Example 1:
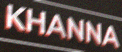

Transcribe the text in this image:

KHANNA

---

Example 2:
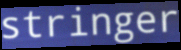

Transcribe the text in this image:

stringer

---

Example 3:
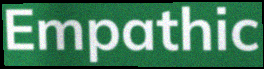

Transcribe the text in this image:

Empathic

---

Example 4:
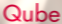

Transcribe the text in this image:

Qube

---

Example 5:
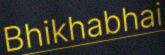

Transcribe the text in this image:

Bhikhabhai